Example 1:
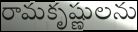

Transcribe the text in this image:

రామకృష్ణులను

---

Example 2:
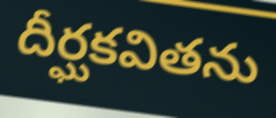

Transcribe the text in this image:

దీర్ఘకవితను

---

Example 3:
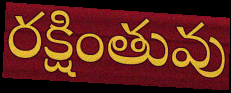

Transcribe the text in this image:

రక్షింతువు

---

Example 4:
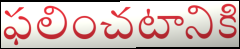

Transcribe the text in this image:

ఫలించటానికి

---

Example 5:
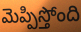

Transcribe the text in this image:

మెప్పిస్తోంది